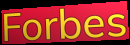
Forbes